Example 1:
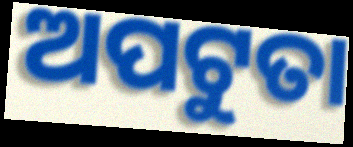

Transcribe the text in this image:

ଅପଟୁତା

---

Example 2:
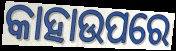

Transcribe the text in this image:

କାହାଉପରେ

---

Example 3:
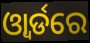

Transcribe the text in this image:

ଓ୍ବାର୍ଡରେ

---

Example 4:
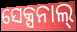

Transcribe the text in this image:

ସେକ୍ସନାଲ୍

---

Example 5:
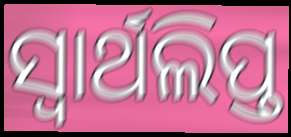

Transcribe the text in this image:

ସ୍ୱାର୍ଥଲିପ୍ତ